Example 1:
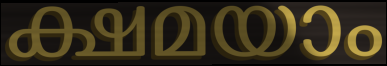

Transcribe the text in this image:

ക്ഷമയാം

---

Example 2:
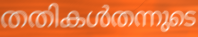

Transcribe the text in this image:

തതികൾതന്നുടെ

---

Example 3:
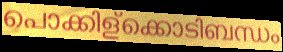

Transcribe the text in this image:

പൊക്കിള്ക്കൊടിബന്ധം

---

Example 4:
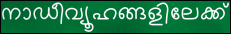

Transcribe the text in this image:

നാഡീവ്യൂഹങ്ങളിലേക്ക്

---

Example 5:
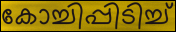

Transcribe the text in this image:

കോച്ചിപ്പിടിച്ച്